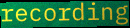
recording